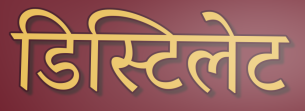
डिस्टिलेट